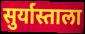
सुर्यास्ताला